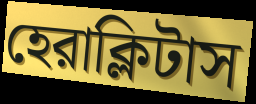
হেরাক্লিটাস